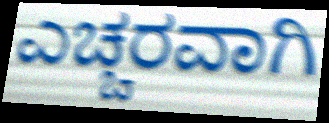
ಎಚ್ಚರವಾಗಿ